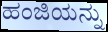
ಹಂಜಿಯನ್ನು